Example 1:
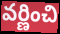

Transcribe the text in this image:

వర్ణించి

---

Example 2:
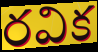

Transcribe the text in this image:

రవిక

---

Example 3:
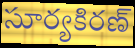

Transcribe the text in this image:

సూర్యకిరణ్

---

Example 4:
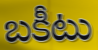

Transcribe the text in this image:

బకీటు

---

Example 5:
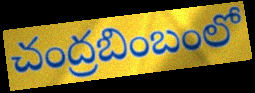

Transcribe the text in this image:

చంద్రబింబంలో